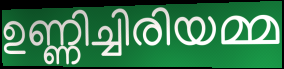
ഉണ്ണിച്ചിരിയമ്മ